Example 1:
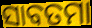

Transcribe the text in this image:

ସାବତମା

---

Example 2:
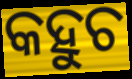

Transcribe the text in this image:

କହୁଚ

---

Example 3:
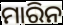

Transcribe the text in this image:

ମାରିନ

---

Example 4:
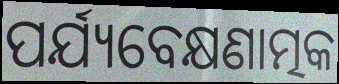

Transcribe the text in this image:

ପର୍ଯ୍ୟବେକ୍ଷଣାତ୍ମକ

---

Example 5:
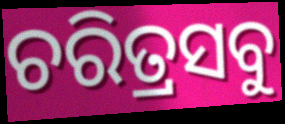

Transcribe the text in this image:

ଚରିତ୍ରସବୁ